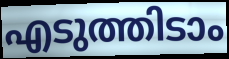
എടുത്തിടാം